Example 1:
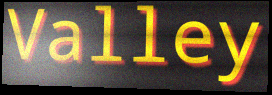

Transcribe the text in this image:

Valley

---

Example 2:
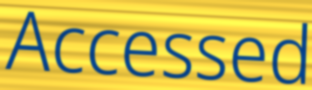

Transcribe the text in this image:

Accessed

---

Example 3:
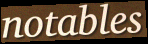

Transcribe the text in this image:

notables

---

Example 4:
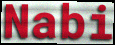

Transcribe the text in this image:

Nabi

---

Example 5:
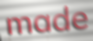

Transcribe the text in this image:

made